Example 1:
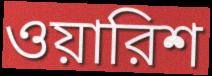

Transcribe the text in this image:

ওয়ারিশ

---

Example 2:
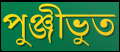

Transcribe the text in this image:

পুঞ্জীভুত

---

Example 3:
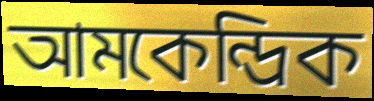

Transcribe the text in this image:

আমকেন্দ্রিক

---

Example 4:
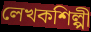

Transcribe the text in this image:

লেখকশিল্পী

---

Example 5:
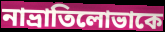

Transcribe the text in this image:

নাভ্রাতিলোভাকে